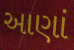
આણાં